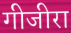
गीजीरा